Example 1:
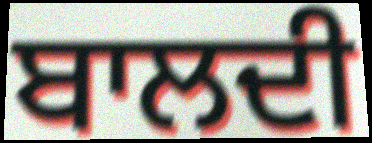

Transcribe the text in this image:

ਬਾਲਦੀ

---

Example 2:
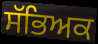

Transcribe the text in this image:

ਸੱਭਿਅਕ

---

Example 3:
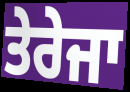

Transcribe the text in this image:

ਤੇਰੇਜਾ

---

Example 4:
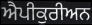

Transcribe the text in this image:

ਐਪੀਕੁਰੀਅਨ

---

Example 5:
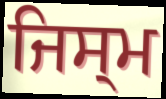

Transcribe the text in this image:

ਜਿਸ੍ਮ